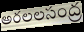
అరలలసంద్ర